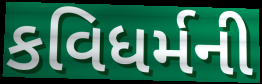
કવિધર્મની